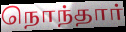
நொந்தார்